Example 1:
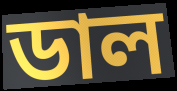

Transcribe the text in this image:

ডাল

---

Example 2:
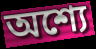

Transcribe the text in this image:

অশ্যে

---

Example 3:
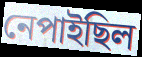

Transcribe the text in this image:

নেপাইছিল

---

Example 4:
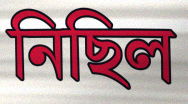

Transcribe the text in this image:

নিছিল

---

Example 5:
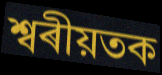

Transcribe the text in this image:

শ্বৰীয়তক